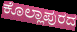
ಕೊಲ್ಲಾಪುರದ